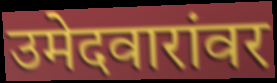
उमेदवारांवर